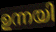
ഉന്നയി